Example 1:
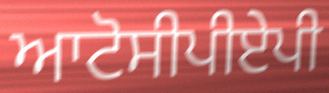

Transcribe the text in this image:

ਆਟੋਸੀਪੀਏਪੀ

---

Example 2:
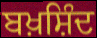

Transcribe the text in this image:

ਬਖ਼ਸ਼ਿੰਦ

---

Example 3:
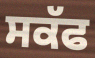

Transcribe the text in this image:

ਸਕੱਫ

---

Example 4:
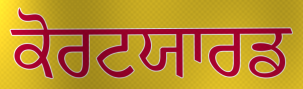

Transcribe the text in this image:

ਕੋਰਟਯਾਰਡ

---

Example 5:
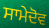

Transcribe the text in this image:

ਸਾਮੇਦੋਵ